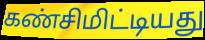
கண்சிமிட்டியது